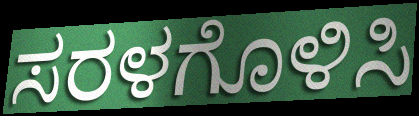
ಸರಳಗೊಳಿಸಿ